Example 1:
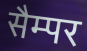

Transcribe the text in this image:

सैम्पर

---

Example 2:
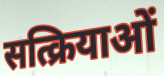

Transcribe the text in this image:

सत्क्रियाओं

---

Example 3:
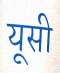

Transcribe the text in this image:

यूसी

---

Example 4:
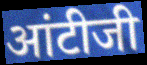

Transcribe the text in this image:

आंटीजी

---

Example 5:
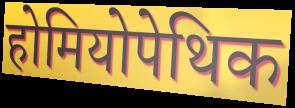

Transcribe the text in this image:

होमियोपेथिक